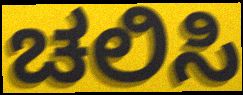
ಚಲಿಸಿ